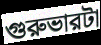
গুরুভারটা